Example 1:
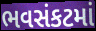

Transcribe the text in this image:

ભવસંકટમાં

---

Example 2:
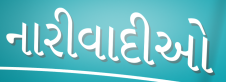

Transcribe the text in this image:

નારીવાદીઓ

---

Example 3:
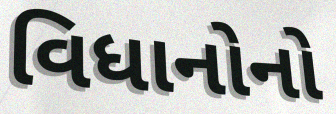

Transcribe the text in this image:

વિધાનોનો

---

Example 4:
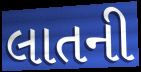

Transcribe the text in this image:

લાતની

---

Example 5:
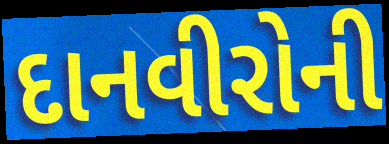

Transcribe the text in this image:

દાનવીરોની